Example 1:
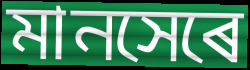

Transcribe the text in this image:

মানসেৰে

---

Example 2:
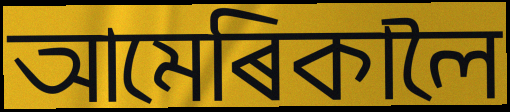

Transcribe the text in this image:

আমেৰিকালৈ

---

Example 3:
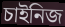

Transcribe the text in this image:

চাইনিজ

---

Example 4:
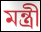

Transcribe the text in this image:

মন্ত্ৰী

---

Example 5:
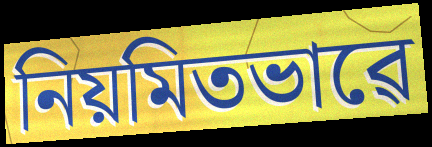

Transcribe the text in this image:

নিয়মিতভাৱে